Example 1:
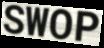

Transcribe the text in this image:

SWOP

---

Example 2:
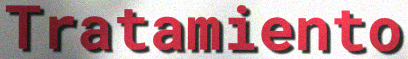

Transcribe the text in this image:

Tratamiento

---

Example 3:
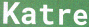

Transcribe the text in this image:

Katre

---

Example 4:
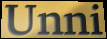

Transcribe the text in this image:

Unni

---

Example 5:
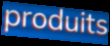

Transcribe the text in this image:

produits